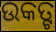
ଉକତ୍ଟ